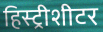
हिस्ट्रीशीटर